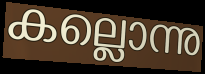
കല്ലൊന്നു